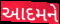
આદમને